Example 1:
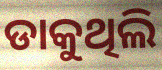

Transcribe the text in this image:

ଡାକୁଥିଲି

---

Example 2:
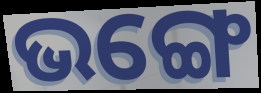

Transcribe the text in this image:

ଭଙ୍ଗେ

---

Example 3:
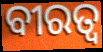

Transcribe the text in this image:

ବୀରତ୍ୱ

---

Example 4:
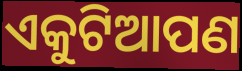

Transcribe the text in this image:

ଏକୁଟିଆପଣ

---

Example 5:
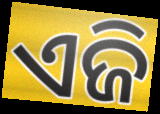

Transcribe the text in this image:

ଏଜି